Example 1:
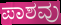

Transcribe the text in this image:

ಪಾಶವು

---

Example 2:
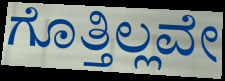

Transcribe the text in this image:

ಗೊತ್ತಿಲ್ಲವೇ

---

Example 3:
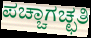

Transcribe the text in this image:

ಪಚ್ಚಾಗಚ್ಛತಿ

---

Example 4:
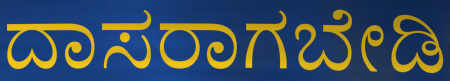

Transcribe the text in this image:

ದಾಸರಾಗಬೇಡಿ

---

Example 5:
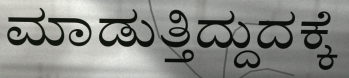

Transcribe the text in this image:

ಮಾಡುತ್ತಿದ್ದುದಕ್ಕೆ